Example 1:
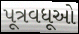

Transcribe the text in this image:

પૂત્રવધૂઓ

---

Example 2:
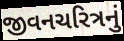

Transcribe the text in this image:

જીવનચરિત્રનું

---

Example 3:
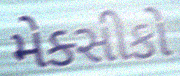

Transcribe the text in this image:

મેક્સીકો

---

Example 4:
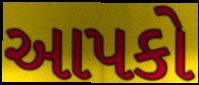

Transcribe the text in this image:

આપકો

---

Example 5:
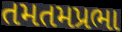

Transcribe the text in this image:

તમતમપ્રભા